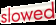
slowed